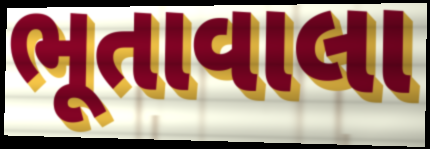
ભૂતાવાલા